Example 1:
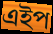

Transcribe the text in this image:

এইপ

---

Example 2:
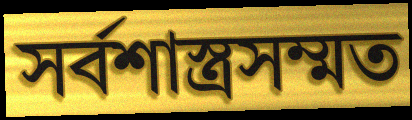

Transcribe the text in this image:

সর্বশাস্ত্রসম্মত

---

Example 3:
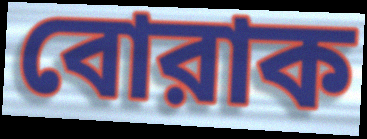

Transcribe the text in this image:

বোরাক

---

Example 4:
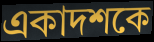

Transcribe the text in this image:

একাদশকে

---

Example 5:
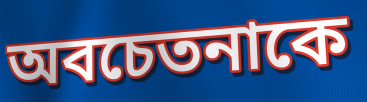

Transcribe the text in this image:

অবচেতনাকে